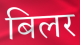
बिलर